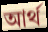
আর্থ